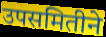
उपसमितीने